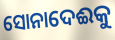
ସୋନାଦେଈକୁ